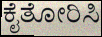
ಕೈತೋರಿಸಿ